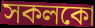
সকলকো